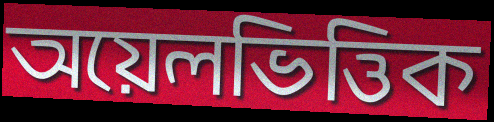
অয়েলভিত্তিক